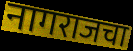
नागराजचा